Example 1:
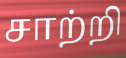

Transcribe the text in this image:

சாற்றி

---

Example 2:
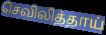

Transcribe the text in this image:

செவிலித்தாய்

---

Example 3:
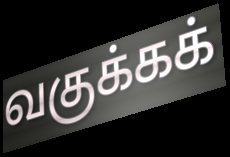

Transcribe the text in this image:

வகுக்கக்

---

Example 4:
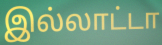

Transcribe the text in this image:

இல்லாட்டா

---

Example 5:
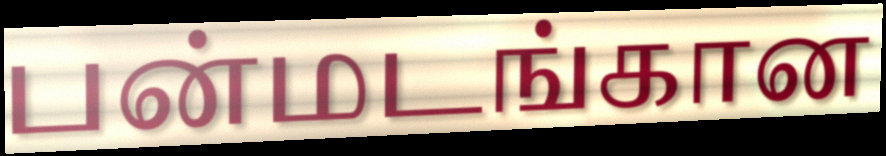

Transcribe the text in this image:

பன்மடங்கான